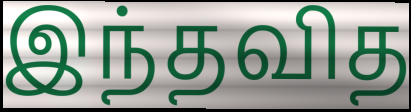
இந்தவித